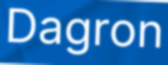
Dagron